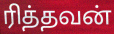
ரித்தவன்